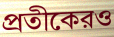
প্রতীকেরও